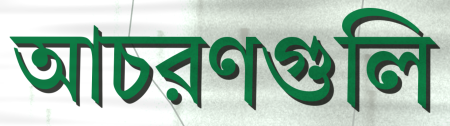
আচরণগুলি